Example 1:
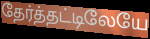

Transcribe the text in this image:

தேர்த்தட்டிலேயே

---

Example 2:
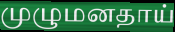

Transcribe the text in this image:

முழுமனதாய்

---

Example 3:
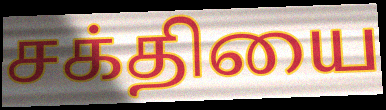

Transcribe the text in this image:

சக்தியை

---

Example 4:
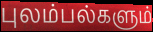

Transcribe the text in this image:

புலம்பல்களும்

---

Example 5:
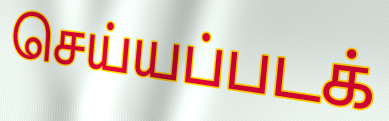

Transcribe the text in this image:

செய்யப்படக்